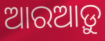
ଆରଆଡ଼ୁ